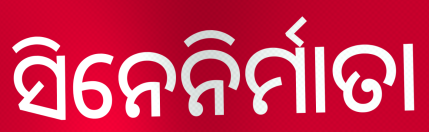
ସିନେନିର୍ମାତା